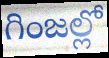
గింజల్లో